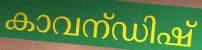
കാവന്ഡിഷ്